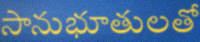
సానుభూతులతో